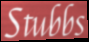
Stubbs